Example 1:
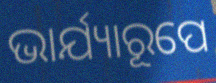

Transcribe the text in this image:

ଭାର୍ଯ୍ୟାରୂପେ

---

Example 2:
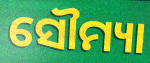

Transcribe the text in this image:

ସୌମ୍ୟା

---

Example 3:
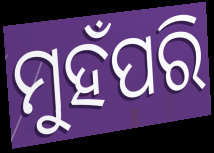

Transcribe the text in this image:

ମୁହଁପରି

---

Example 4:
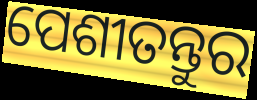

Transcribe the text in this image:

ପେଶୀତନ୍ତୁର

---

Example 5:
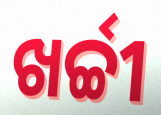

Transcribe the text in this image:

ଖର୍ଚ୍ଚୀ